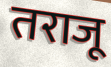
तराजू